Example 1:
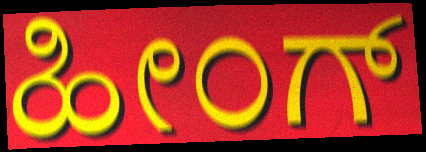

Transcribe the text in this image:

ಹೀಂಗ್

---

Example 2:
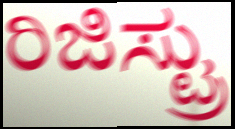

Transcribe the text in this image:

ರಿಜಿಸ್ಟ್ರು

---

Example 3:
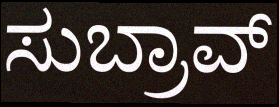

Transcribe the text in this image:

ಸುಬ್ರಾವ್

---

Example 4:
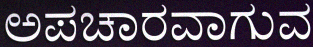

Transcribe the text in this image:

ಅಪಚಾರವಾಗುವ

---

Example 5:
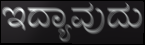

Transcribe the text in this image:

ಇದ್ಯಾವುದು